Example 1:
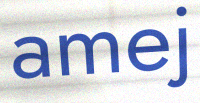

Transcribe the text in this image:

amej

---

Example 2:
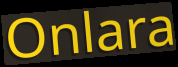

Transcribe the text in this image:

Onlara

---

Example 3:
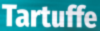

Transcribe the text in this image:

Tartuffe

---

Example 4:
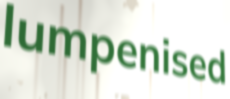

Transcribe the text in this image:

lumpenised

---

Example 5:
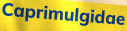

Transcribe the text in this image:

Caprimulgidae